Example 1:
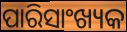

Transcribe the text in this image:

ପାରିସାଂଖ୍ୟକ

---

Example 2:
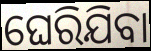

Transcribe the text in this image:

ଘେରିଯିବା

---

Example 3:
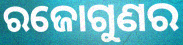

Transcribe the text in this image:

ରଜୋଗୁଣର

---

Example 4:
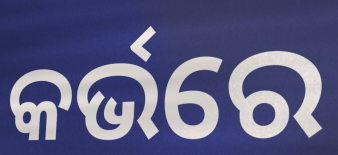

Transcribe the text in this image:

କର୍ଭରେ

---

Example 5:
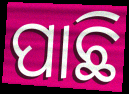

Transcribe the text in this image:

ପାଛି